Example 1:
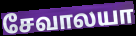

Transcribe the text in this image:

சேவாலயா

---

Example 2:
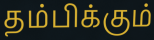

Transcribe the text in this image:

தம்பிக்கும்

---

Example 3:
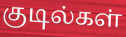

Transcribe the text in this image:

குடில்கள்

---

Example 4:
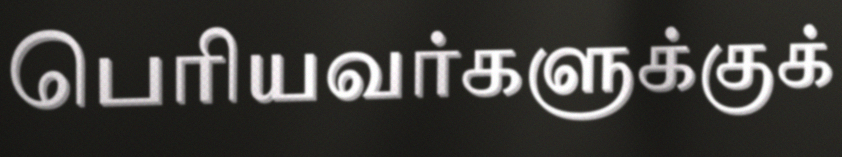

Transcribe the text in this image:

பெரியவர்களுக்குக்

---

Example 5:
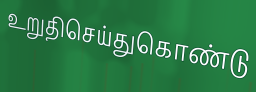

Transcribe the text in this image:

உறுதிசெய்துகொண்டு